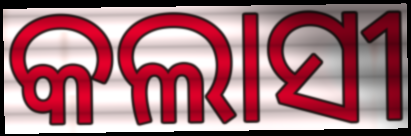
କଲାସୀ